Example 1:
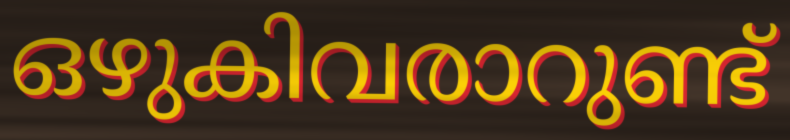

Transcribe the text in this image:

ഒഴുകിവരാറുണ്ട്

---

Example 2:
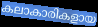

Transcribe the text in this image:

കലാകാരികളായ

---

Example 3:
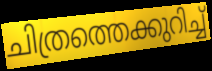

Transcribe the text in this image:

ചിത്രത്തെക്കുറിച്ച്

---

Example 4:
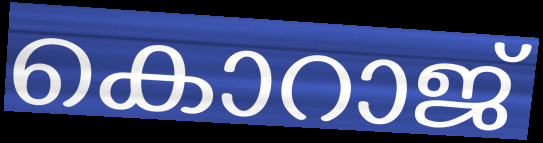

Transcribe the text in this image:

കൊറാജ്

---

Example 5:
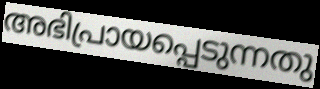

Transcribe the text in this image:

അഭിപ്രായപ്പെടുന്നതു